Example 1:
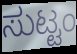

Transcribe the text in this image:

ಸುಟ್ಟಂ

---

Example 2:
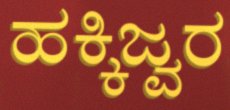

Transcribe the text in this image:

ಹಕ್ಕಿಜ್ವರ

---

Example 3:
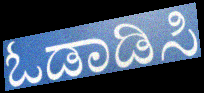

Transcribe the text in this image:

ಓಡಾಡಿಸಿ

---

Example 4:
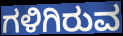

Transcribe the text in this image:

ಗಳಿಗಿರುವ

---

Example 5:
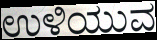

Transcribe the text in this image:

ಉಳಿಯುವ